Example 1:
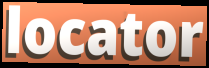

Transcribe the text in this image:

locator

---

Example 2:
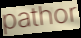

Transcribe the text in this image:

pathor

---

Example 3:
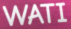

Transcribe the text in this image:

WATI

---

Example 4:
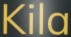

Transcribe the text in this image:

Kila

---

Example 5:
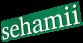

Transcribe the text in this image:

sehamii